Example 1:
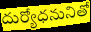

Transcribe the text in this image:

దుర్యోధనునితో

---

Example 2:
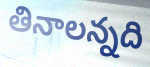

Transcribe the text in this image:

తినాలన్నది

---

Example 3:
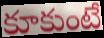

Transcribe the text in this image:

కూకుంటే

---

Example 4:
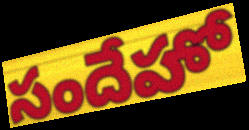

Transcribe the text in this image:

సందేహో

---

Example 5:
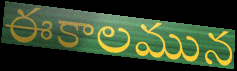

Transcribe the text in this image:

ఈకాలమున